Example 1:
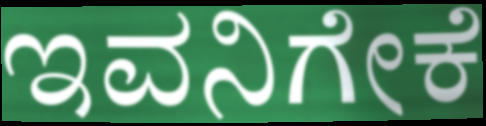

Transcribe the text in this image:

ಇವನಿಗೇಕೆ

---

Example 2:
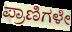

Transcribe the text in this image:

ಪ್ರಾಣಿಗಳೇ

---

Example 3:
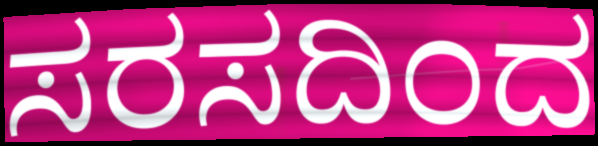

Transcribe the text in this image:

ಸರಸದಿಂದ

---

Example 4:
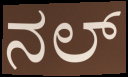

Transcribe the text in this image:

ನಲ್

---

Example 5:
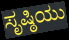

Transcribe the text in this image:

ಸೃಷ್ಠಿಯು